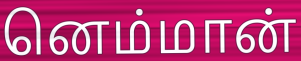
னெம்மான்